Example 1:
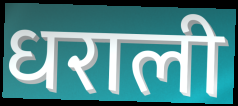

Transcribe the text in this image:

धराली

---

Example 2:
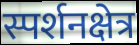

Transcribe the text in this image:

स्पर्शनक्षेत्र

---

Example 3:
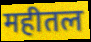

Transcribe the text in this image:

महीतल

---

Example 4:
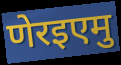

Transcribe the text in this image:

णेरइएमु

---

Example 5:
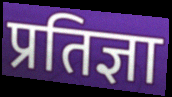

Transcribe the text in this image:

प्रतिज्ञा